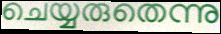
ചെയ്യരുതെന്നു